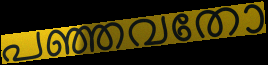
പഞ്ഞവതോ